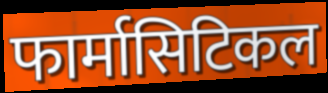
फार्मासिटिकल